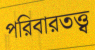
পরিবারতত্ত্ব